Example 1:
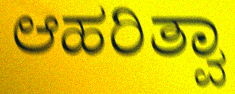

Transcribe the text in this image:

ಆಹರಿತ್ವಾ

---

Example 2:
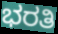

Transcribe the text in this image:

ಭರತಿ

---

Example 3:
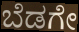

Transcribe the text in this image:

ಬೆಡಗೇ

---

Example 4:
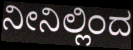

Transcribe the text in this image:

ನೀನಿಲ್ಲಿಂದ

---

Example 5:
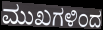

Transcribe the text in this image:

ಮುಖಗಳಿಂದ